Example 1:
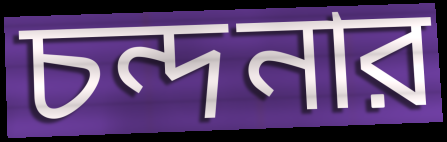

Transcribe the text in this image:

চন্দনার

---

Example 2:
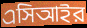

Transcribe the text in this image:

এসিআইর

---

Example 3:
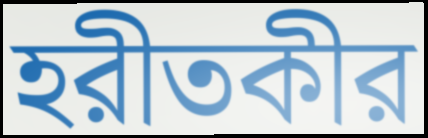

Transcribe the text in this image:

হরীতকীর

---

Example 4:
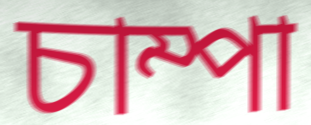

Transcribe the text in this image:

চাম্পা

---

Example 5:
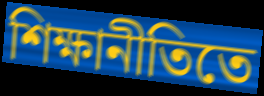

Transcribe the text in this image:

শিক্ষানীতিতে